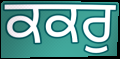
ਕਕਰੁ